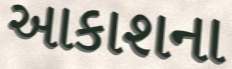
આકાશના